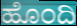
ಹೊಂದಿ